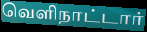
வெளிநாட்டார்